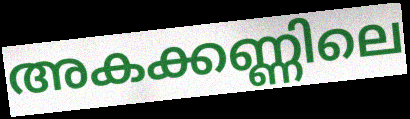
അകക്കണ്ണിലെ